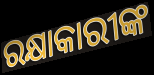
ରକ୍ଷାକାରୀଙ୍କ